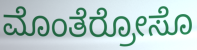
ಮೊಂತೆರ್ರೋಸೊ